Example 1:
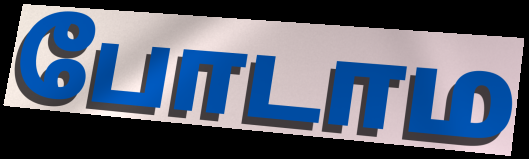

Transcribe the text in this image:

போடாம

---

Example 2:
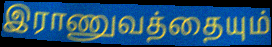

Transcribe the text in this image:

இராணுவத்தையும்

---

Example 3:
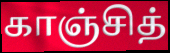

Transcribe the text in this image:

காஞ்சித்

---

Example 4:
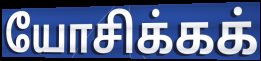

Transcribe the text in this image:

யோசிக்கக்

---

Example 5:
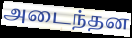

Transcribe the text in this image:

அடைந்தன